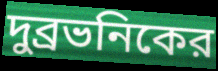
দুব্রভনিকের